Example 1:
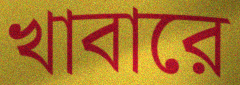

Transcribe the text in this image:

খাবারে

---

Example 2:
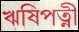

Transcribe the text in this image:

ঋষিপত্নী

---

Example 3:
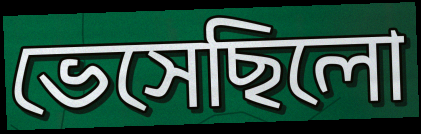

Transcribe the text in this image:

ভেসেছিলো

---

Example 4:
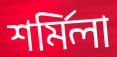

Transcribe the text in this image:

শর্মিলা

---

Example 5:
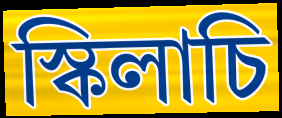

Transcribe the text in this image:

স্কিলাচি